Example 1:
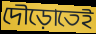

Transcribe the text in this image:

দৌড়োতেই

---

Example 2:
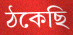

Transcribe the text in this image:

ঠকেছি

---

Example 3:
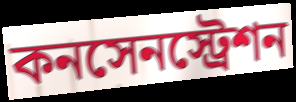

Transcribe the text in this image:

কনসেনস্ট্রেশন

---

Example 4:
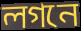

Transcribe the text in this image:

লগনে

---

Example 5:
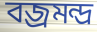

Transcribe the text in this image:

বজ্রমন্দ্র